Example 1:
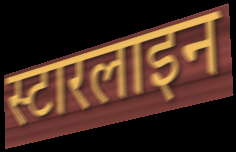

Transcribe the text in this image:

स्टारलाइन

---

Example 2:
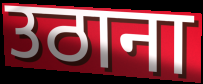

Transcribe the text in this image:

उठाना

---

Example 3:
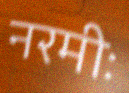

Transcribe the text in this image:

नरमीः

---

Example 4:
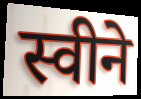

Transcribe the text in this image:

स्वीने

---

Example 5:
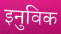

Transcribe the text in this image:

इनुविक